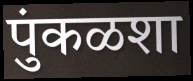
पुंकळशा